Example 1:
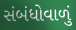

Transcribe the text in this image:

સંબંધોવાળું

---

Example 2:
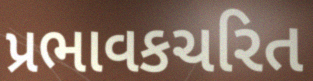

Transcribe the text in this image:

પ્રભાવકચરિત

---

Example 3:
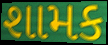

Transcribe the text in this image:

શામક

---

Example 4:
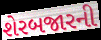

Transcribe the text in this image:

શેરબજારની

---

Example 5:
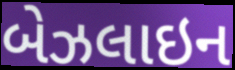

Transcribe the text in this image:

બેઝલાઇન